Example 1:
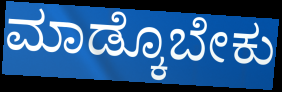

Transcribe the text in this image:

ಮಾಡ್ಕೊಬೇಕು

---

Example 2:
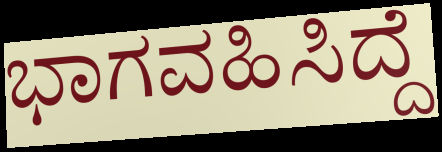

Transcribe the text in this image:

ಭಾಗವಹಿಸಿದ್ದೆ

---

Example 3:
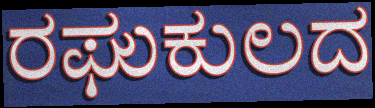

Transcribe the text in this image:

ರಘುಕುಲದ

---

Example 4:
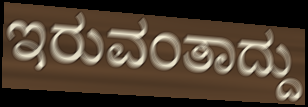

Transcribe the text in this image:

ಇರುವಂತಾದ್ದು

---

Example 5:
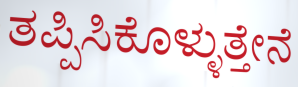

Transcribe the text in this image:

ತಪ್ಪಿಸಿಕೊಳ್ಳುತ್ತೇನೆ